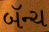
બૅન્ચ